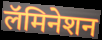
लॅमिनेशन